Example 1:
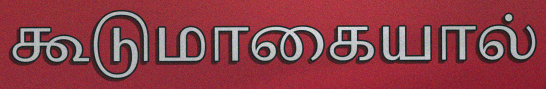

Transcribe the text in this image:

கூடுமாகையால்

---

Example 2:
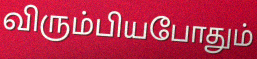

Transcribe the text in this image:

விரும்பியபோதும்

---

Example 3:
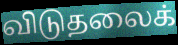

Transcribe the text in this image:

விடுதலைக்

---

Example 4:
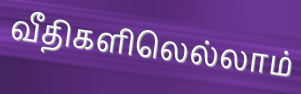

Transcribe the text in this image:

வீதிகளிலெல்லாம்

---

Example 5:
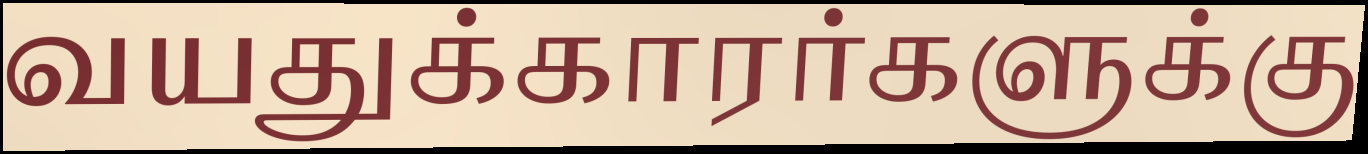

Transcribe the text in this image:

வயதுக்காரர்களுக்கு